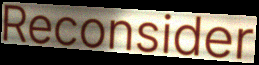
Reconsider